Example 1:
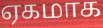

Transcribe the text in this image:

ஏகமாக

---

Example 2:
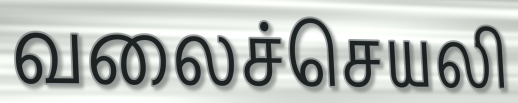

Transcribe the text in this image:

வலைச்செயலி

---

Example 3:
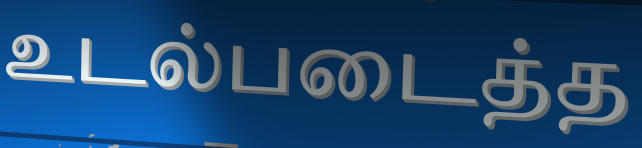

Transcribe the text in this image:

உடல்படைத்த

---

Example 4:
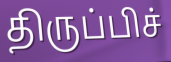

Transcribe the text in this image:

திருப்பிச்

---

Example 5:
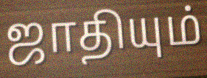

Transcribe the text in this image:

ஜாதியும்